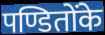
पण्डितोंके